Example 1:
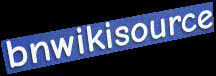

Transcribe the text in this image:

bnwikisource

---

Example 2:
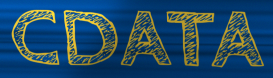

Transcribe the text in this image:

CDATA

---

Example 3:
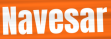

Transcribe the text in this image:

Navesar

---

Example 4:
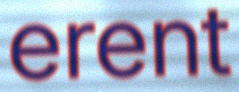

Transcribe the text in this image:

erent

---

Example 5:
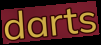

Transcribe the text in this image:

darts